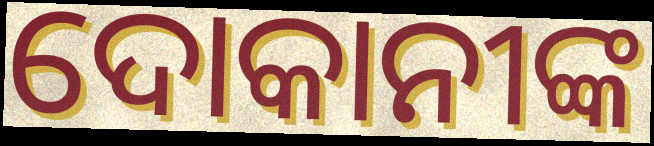
ଦୋକାନୀଙ୍କ